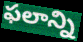
ఫలాన్ని